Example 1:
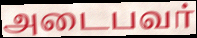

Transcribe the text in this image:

அடைபவர்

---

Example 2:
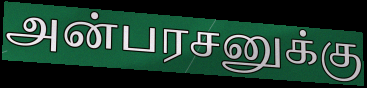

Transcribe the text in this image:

அன்பரசனுக்கு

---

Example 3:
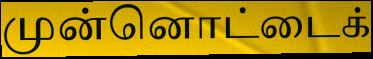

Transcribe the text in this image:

முன்னொட்டைக்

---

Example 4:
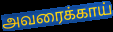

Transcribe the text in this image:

அவரைக்காய்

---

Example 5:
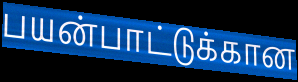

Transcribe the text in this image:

பயன்பாட்டுக்கான